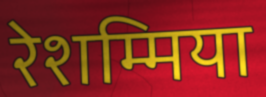
रेशम्मिया